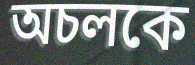
অচলকে